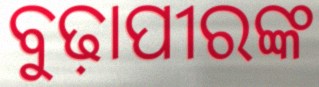
ବୁଢ଼ାପୀରଙ୍କ